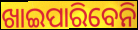
ଖାଇପାରିବେନି